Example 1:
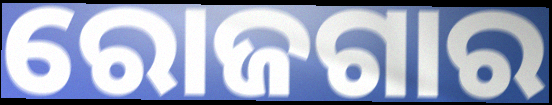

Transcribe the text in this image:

ରୋଜଗାର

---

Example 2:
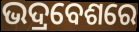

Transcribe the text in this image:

ଭଦ୍ରବେଶରେ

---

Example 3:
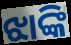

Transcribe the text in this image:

ଝାଙ୍କି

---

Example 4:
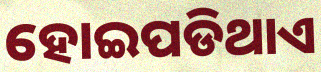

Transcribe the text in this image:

ହୋଇପଡିଥାଏ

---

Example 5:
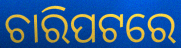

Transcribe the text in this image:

ଚାରିପଟରେ